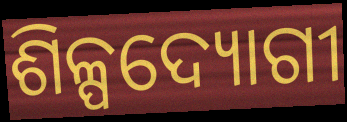
ଶିଳ୍ପଦ୍ୟୋଗୀ